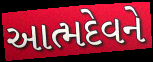
આત્મદેવને